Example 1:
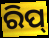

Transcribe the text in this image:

ରିପ୍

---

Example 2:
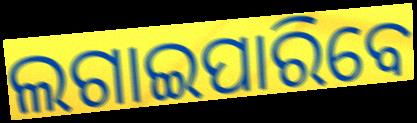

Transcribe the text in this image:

ଲଗାଇପାରିବେ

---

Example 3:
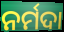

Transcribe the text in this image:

ନର୍ମଦା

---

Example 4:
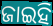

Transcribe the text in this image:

ଜାଇହି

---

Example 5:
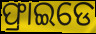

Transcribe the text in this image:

ଫ୍ରାଇଡେ